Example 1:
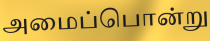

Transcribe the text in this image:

அமைப்பொன்று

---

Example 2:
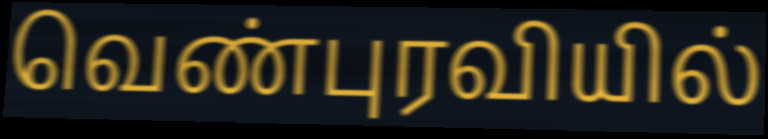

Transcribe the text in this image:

வெண்புரவியில்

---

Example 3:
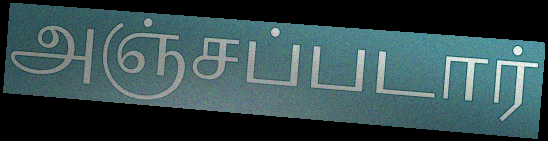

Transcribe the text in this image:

அஞ்சப்படார்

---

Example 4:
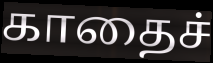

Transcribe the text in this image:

காதைச்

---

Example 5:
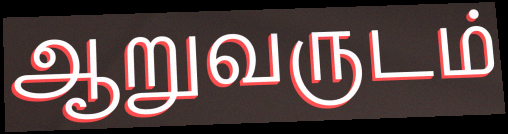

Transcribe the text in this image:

ஆறுவருடம்